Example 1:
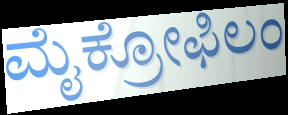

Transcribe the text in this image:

ಮೈಕ್ರೋಫಿಲಂ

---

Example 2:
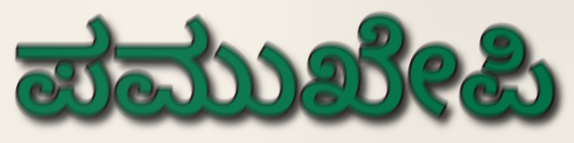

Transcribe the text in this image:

ಪಮುಖೇಪಿ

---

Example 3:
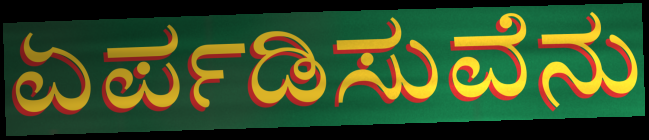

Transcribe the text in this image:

ಏರ್ಪಡಿಸುವೆನು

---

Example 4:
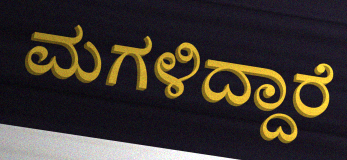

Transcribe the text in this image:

ಮಗಳಿದ್ದಾರೆ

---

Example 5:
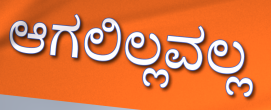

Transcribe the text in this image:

ಆಗಲಿಲ್ಲವಲ್ಲ